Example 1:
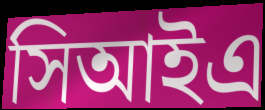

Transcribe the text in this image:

সিআইএ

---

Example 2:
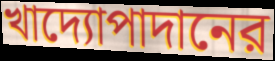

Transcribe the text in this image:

খাদ্যোপাদানের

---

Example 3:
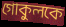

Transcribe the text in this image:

গোকুলকে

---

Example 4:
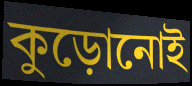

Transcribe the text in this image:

কুড়োনোই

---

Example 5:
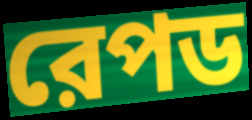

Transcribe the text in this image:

রেপড